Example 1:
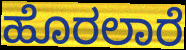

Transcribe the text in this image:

ಹೊರಲಾರೆ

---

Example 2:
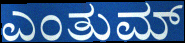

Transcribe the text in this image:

ಎಂತುಮ್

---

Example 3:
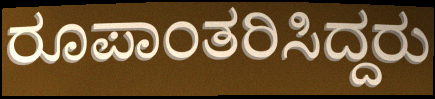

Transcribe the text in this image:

ರೂಪಾಂತರಿಸಿದ್ದರು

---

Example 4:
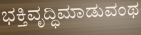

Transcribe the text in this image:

ಭಕ್ತಿವೃದ್ಧಿಮಾಡುವಂಥ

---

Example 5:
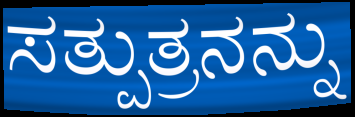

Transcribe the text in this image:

ಸತ್ಪುತ್ರನನ್ನು